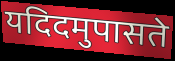
यदिदमुपासते